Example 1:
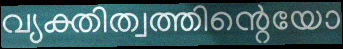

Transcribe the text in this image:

വ്യക്തിത്വത്തിന്റെയോ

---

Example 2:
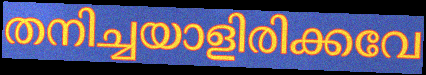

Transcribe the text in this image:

തനിച്ചയാളിരിക്കവേ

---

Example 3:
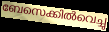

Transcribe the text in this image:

ബേസെക്കിൽവെച്ചു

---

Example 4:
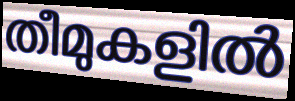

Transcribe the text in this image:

തീമുകളിൽ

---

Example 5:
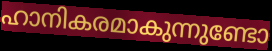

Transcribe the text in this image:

ഹാനികരമാകുന്നുണ്ടോ